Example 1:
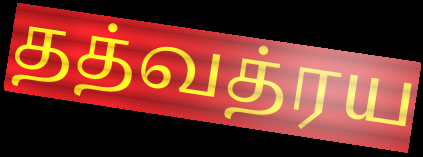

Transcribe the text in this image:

தத்வத்ரய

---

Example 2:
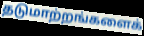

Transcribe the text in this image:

தடுமாற்றங்களைக்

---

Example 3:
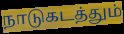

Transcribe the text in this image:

நாடுகடத்தும்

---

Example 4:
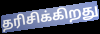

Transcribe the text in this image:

தரிசிக்கிறது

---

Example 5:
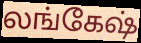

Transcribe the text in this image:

லங்கேஷ்